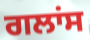
ਗਲਾਂਸ